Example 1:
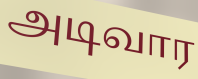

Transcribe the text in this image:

அடிவார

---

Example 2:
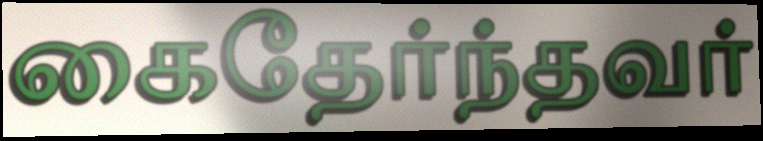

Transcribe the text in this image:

கைதேர்ந்தவர்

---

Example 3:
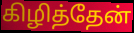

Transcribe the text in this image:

கிழித்தேன்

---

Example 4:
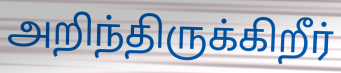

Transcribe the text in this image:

அறிந்திருக்கிறீர்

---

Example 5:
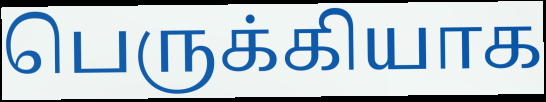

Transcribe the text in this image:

பெருக்கியாக